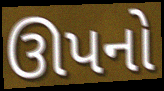
ઊપનો